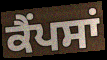
ਕੈਂਪਸਾਂ